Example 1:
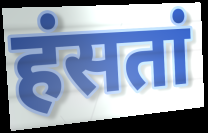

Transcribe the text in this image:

हंसतां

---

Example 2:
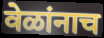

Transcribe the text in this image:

वेळांनाच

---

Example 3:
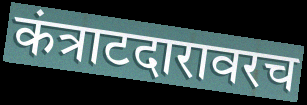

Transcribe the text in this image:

कंत्राटदारावरच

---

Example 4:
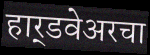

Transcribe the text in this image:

हार्डवेअरचा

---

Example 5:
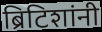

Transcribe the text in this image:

ब्रिटिशांनी